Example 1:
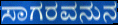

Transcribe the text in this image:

ಸಾಗರವನುನ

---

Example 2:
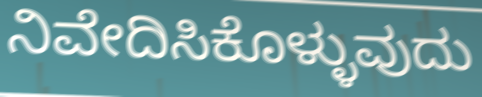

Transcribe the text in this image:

ನಿವೇದಿಸಿಕೊಳ್ಳುವುದು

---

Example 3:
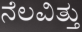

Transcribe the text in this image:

ನೆಲವಿತ್ತು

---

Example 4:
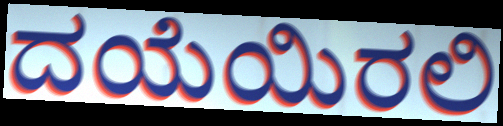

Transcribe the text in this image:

ದಯೆಯಿರಲಿ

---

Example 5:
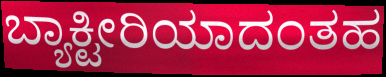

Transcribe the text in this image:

ಬ್ಯಾಕ್ಟೀರಿಯಾದಂತಹ